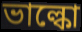
ভাল্কো